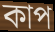
কাপ